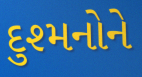
દુશ્મનોને